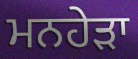
ਮਨਹੇੜਾ